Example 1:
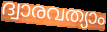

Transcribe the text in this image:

ദ്വാരവത്യാം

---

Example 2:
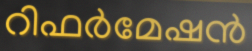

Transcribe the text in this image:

റിഫർമേഷൻ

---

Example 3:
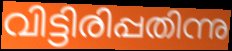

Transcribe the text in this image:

വിട്ടിരിപ്പതിന്നു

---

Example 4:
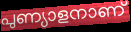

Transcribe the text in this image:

പുണ്യാളനാണ്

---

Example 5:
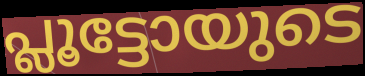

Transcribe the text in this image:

പ്ലൂട്ടോയുടെ